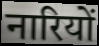
नारियों